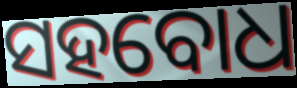
ସହବୋଧ